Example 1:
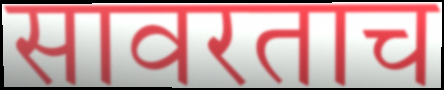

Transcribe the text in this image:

सावरताच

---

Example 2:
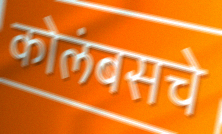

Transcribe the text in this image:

कोलंबसचे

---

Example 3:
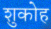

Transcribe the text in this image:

शुकोह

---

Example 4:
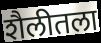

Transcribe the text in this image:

शैलीतला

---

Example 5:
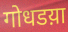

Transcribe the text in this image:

गोधडय़ा